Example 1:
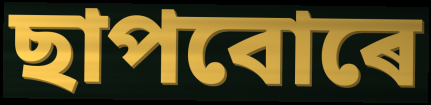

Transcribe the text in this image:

ছাপবোৰে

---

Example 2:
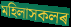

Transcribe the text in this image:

মহিলাসকলৰ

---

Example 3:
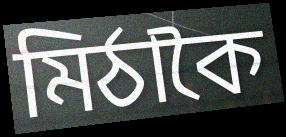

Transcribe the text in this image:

মিঠাকৈ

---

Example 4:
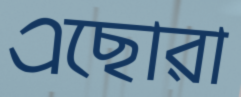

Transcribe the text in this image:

এছোৱা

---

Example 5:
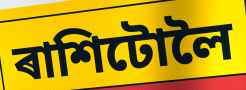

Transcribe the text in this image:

ৰাশিটোলৈ